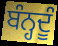
ਬੰਨ੍ਹਦੂੰ